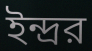
ইন্দ্রর